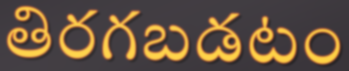
తిరగబడటం